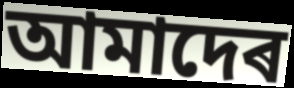
আমাদেৰ